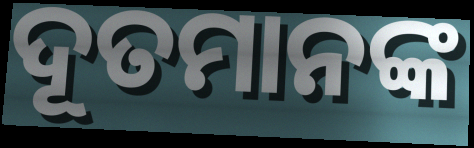
ଦୂତମାନଙ୍କ